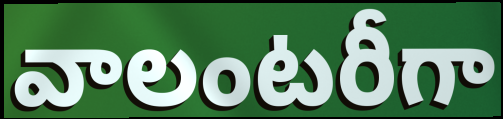
వాలంటరీగా